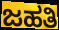
ಜಹತಿ